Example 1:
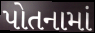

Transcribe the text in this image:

પોતનામાં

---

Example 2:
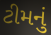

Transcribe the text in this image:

ટીમનું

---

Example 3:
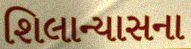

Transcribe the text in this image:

શિલાન્યાસના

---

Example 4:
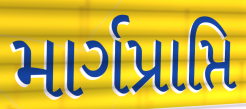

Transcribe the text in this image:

માર્ગપ્રાપ્તિ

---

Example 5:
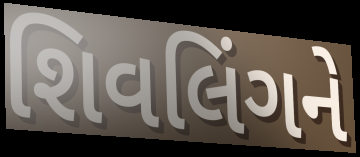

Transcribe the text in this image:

શિવલિંગને